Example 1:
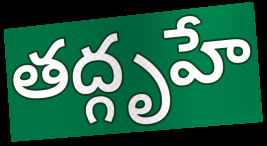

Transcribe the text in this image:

తద్గృహే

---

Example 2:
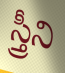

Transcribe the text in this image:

స్త్రీని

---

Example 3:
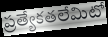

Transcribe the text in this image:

ప్రత్యేకతలేమిటో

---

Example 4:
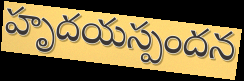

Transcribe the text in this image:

హృదయస్పందన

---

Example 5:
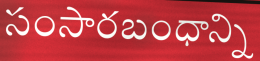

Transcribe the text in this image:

సంసారబంధాన్ని